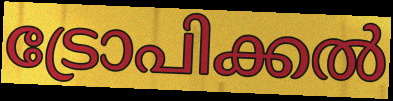
ട്രോപിക്കൽ